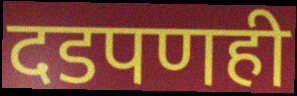
दडपणही